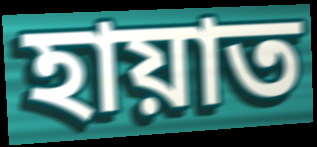
হায়াত